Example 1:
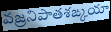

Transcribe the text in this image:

వజ్రనిపాతశఙ్కయా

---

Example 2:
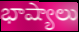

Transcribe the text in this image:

భాష్యాలు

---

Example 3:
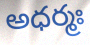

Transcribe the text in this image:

అధర్మః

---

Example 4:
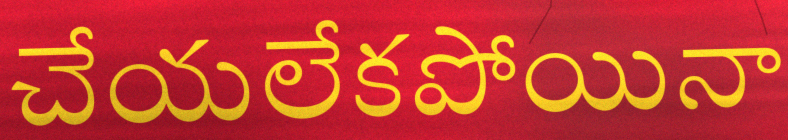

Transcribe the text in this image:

చేయలేకపోయినా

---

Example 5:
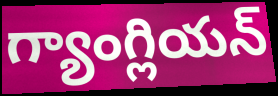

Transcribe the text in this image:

గ్యాంగ్లియన్